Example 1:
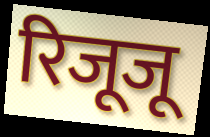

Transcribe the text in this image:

रिजूजू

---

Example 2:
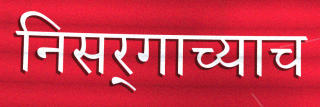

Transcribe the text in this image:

निसर्गाच्याच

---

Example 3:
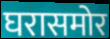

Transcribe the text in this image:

घरासमोर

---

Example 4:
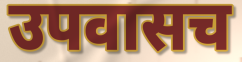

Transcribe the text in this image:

उपवासच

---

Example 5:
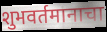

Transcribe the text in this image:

शुभवर्तमानाचा